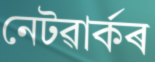
নেটৱাৰ্কৰ